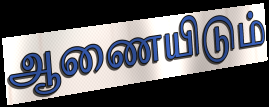
ஆணையிடும்